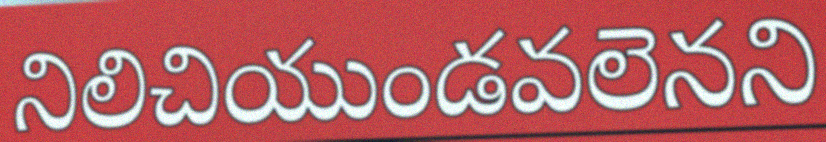
నిలిచియుండవలెనని